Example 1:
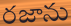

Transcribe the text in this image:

రజాను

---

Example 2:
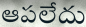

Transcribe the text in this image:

ఆపలేదు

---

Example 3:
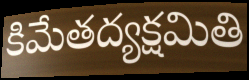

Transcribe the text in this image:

కిమేతద్యక్షమితి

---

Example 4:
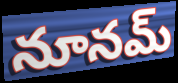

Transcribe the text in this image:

నూనమ్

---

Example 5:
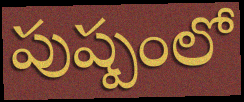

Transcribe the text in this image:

పుష్పంలో